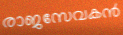
രാജസേവകൻ